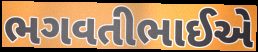
ભગવતીભાઈએ